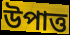
উপাত্ত